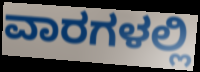
ವಾರಗಳಲ್ಲಿ